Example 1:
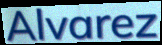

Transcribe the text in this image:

Alvarez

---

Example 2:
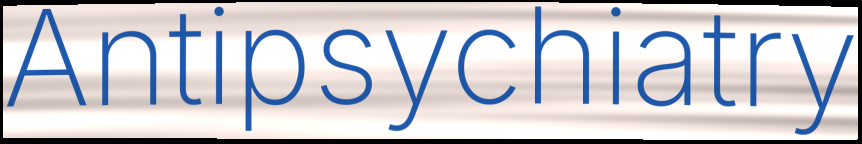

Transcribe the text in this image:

Antipsychiatry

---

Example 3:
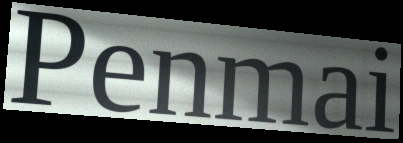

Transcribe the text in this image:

Penmai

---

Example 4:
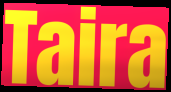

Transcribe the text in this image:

Taira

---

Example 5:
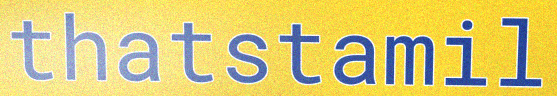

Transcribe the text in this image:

thatstamil